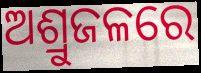
ଅଶ୍ରୁଜଳରେ